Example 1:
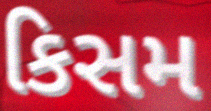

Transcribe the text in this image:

કિસમ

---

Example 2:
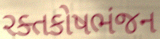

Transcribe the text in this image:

રક્તકોષભંજન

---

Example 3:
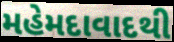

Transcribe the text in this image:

મહેમદાવાદથી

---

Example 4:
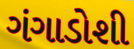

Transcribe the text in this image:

ગંગાડોશી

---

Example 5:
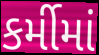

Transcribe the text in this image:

કર્મીમાં